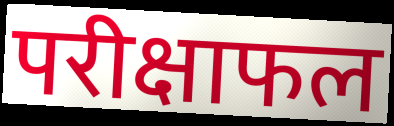
परीक्षाफल